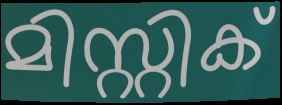
മിസ്റ്റിക്